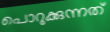
പൊറുക്കുന്നത്